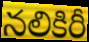
నలికిరీ